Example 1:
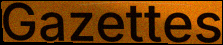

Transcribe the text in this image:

Gazettes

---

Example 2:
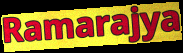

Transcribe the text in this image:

Ramarajya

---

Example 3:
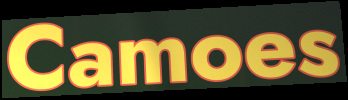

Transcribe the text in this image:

Camoes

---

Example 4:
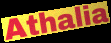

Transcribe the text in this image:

Athalia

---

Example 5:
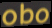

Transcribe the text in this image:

obo